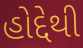
હોદ્દેથી